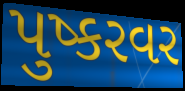
પુષ્કરવર